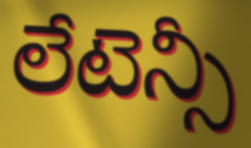
లేటెన్సీ